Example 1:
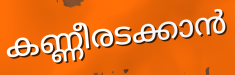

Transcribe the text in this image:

കണ്ണീരടക്കാൻ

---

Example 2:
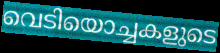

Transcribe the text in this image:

വെടിയൊച്ചകളുടെ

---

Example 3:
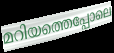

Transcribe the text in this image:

മറിയത്തെപ്പോലെ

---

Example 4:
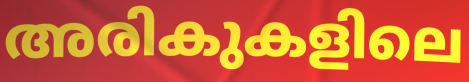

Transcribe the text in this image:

അരികുകളിലെ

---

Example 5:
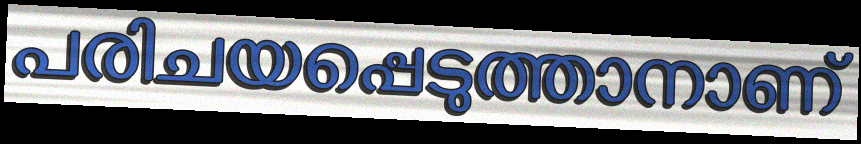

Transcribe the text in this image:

പരിചയപ്പെടുത്താനാണ്